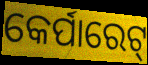
କେର୍ପାରେଟ୍